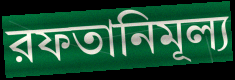
রফতানিমূল্য